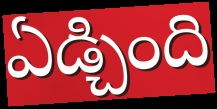
ఏడ్చింది